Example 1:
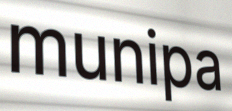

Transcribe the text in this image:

munipa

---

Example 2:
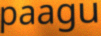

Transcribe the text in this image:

paagu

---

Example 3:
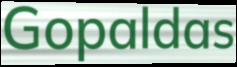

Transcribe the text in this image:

Gopaldas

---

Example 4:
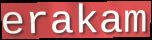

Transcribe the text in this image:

erakam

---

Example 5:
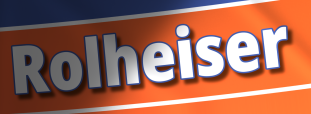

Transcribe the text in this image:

Rolheiser